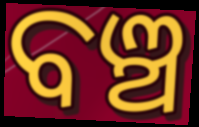
ବଞ୍ଚ